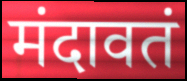
मंदावतं